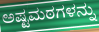
ಅಷ್ಟಮಠಗಳನ್ನು